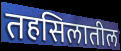
तहसिलातील